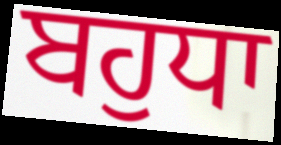
ਬਹੁਧਾ